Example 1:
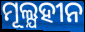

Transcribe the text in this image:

ମୂଲ୍ଯହୀନ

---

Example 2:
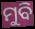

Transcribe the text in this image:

ମୁବି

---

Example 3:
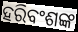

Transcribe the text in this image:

ହରିବଂଶଙ୍କ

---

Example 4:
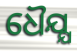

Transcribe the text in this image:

ଧୈଯ୍ଯ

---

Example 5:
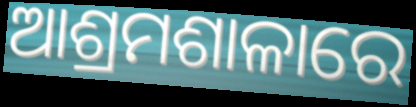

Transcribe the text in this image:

ଆଶ୍ରମଶାଳାରେ